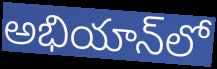
అభియాన్‌లో